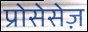
प्रोसेसेज़